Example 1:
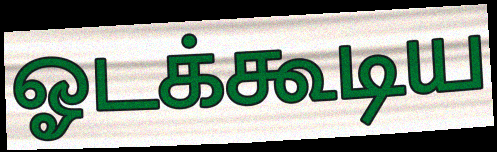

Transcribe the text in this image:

ஓடக்கூடிய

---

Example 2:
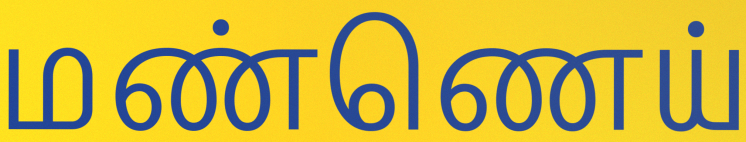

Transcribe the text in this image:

மண்ணெய்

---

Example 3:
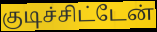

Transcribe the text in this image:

குடிச்சிட்டேன்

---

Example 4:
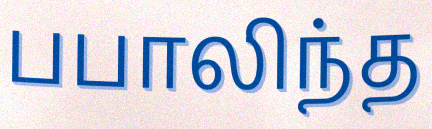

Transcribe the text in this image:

பபாலிந்த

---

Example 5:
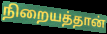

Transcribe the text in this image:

நிறையத்தான்